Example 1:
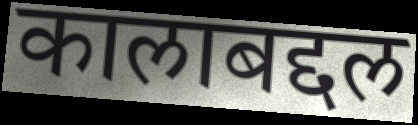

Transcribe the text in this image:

कालाबद्दल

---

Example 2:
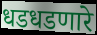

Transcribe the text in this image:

धडधडणारे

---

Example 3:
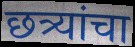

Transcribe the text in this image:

छत्र्यांचा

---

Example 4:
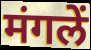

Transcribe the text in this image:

मंगलें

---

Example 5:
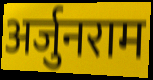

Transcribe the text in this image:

अर्जुनराम